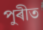
পুৰীত